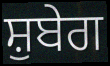
ਸ਼ੁਬੇਗ